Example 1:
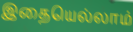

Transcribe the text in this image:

இதையெல்லாம்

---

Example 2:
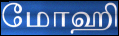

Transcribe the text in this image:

மோஹி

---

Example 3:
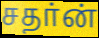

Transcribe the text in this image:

சதர்ன்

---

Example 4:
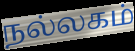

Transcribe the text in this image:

நல்லகம்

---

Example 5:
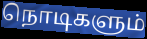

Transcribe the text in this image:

நொடிகளும்